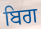
ਬਿਗ